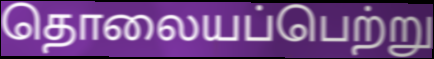
தொலையப்பெற்று